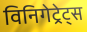
विनिगेट्रेट्स